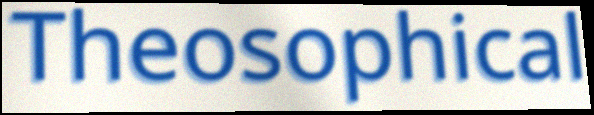
Theosophical